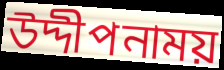
উদ্দীপনাময়